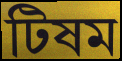
টিষম